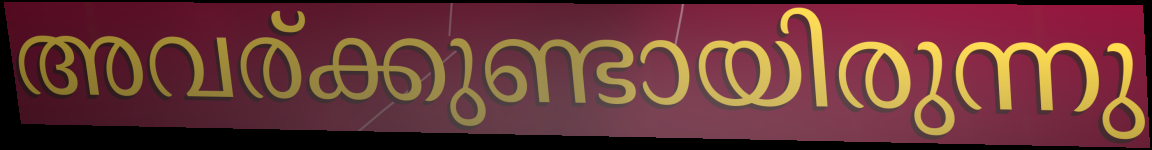
അവര്ക്കുണ്ടായിരുന്നു